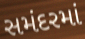
સમંદરમાં